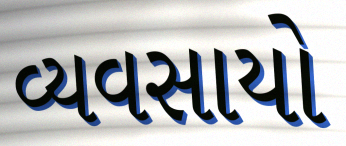
વ્યવસાયો